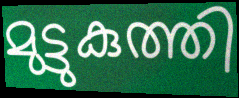
മുട്ടുകുത്തി